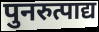
पुनरुत्पाद्य